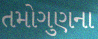
તમોગુણના